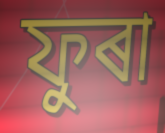
ফুৰা